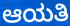
ಆಯತಿ